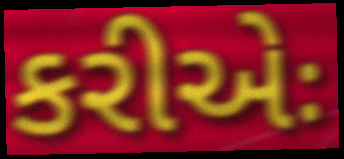
કરીએઃ